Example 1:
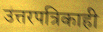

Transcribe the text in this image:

उत्तरपत्रिकाही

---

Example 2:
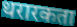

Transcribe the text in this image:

थरारकता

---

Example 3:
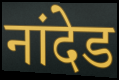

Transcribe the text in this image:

नांदेड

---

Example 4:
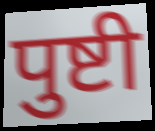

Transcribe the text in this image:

पुष्टी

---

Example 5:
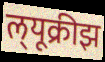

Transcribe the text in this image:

ल्यूक्रीझ